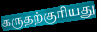
கருதற்குரியது